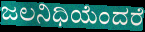
ಜಲನಿಧಿಯೆಂದರೆ